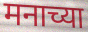
मनाच्‍या